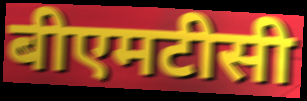
बीएमटीसी